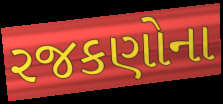
રજકણોના